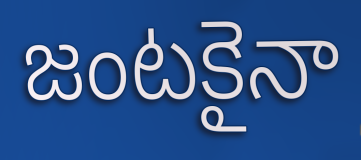
జంటకైనా